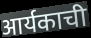
आर्यकाची